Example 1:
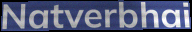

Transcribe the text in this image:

Natverbhai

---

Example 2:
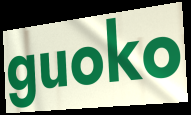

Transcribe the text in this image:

guoko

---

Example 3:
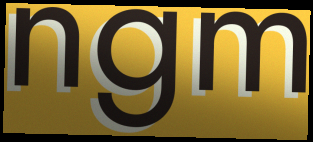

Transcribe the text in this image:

ngm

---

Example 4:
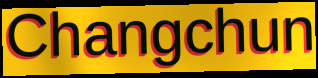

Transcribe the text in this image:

Changchun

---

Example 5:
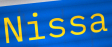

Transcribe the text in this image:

Nissa